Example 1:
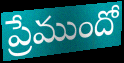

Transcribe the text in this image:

ప్రేముందో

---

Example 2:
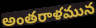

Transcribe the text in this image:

అంతరాళమున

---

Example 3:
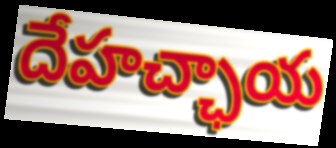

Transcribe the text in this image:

దేహచ్ఛాయ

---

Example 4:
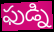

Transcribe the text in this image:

ఫుడ్ని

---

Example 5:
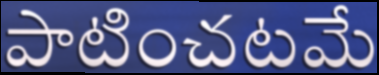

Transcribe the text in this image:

పాటించటమే